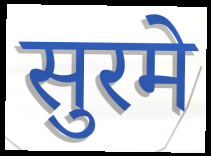
सुरमे